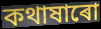
কথাষাৰো